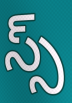
స్స్